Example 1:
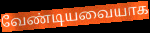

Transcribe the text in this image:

வேண்டியவையாக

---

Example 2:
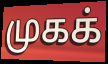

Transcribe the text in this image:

முகக்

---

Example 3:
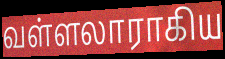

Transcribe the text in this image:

வள்ளலாராகிய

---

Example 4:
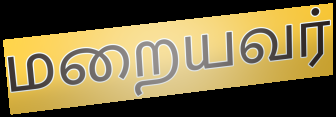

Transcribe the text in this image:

மறையவர்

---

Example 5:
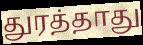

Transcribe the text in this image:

துரத்தாது